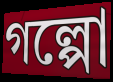
গল্পো